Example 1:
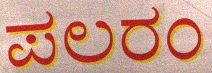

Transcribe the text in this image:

ಪಲರಂ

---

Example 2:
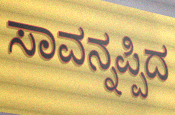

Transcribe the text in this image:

ಸಾವನ್ನಪ್ಪಿದ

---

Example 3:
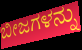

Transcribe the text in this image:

ಬೀಜಗಳನ್ನು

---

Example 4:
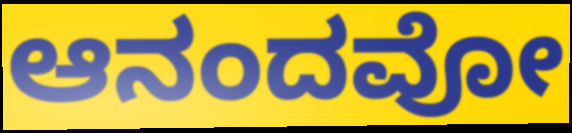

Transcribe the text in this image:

ಆನಂದವೋ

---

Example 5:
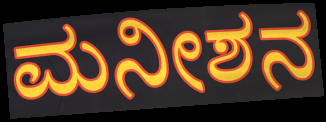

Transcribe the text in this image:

ಮನೀಶನ